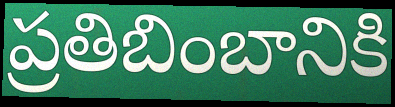
ప్రతిబింబానికి